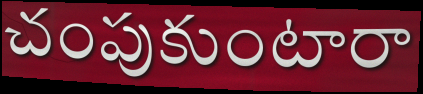
చంపుకుంటారా